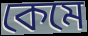
কেমে